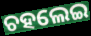
ଚହଲେଇ